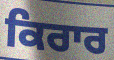
ਕਿਰਾਰ